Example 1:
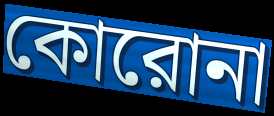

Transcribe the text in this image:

কোরোনা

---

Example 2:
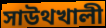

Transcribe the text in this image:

সাউথখালী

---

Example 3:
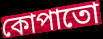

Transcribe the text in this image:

কোপাতো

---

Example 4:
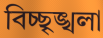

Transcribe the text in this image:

বিচ্ছৃঙ্খলা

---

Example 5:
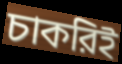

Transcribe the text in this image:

চাকরিই